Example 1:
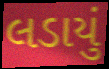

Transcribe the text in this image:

લડાયું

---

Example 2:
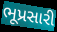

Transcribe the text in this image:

ભૂપ્રસારી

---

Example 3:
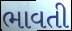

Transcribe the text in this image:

ભાવતી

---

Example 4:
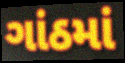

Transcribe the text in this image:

ગાંઠમાં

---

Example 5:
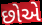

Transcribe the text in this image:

છોએ